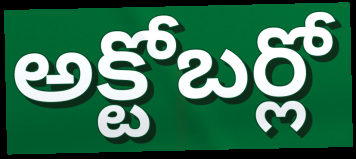
అక్టోబర్లో